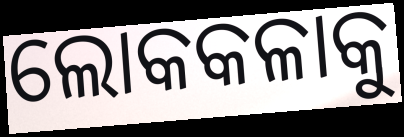
ଲୋକକଳାକୁ